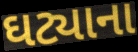
ઘટ્યાના